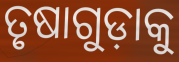
ତୃଷାଗୁଡ଼ାକୁ